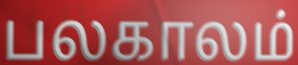
பலகாலம்